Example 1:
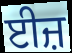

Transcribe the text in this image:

ਈਜ਼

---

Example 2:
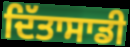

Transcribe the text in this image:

ਦਿੱਤਾਸਾਡੀ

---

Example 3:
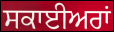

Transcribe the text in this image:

ਸਕਾਈਅਰਾਂ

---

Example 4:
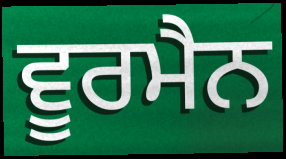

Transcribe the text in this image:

ਵੂਰਮੈਨ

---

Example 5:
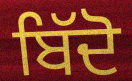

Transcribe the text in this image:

ਬਿੱਦੋ